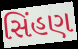
સિંહણ